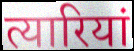
त्यारियां